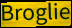
Broglie